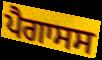
ਪੈਗਾਸਸ